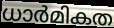
ധാർമികത